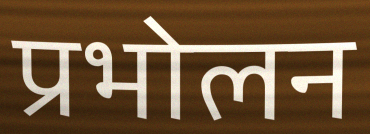
प्रभोलन